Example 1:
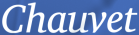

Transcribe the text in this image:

Chauvet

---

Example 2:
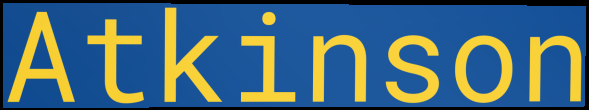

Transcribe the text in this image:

Atkinson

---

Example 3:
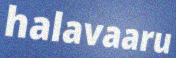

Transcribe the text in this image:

halavaaru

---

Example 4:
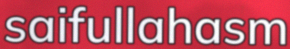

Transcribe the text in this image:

saifullahasm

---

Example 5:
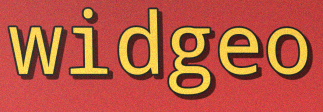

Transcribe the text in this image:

widgeo